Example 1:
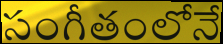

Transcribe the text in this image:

సంగీతంలోనే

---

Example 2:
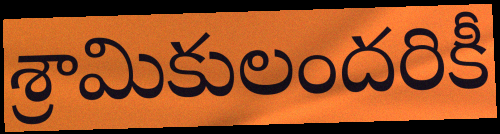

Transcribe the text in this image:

శ్రామికులందరికీ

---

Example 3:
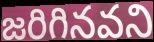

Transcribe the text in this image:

జరిగినవని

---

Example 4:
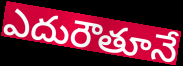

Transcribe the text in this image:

ఎదురౌతూనే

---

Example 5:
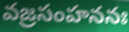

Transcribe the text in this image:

వజ్రసంహననః